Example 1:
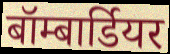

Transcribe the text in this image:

बॉम्बार्डियर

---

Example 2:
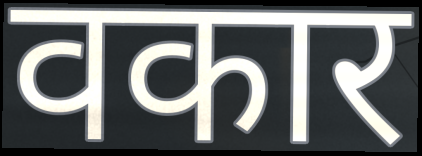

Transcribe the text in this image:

वकार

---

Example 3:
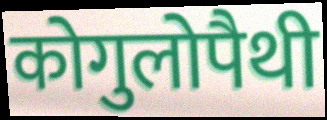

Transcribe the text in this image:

कोगुलोपैथी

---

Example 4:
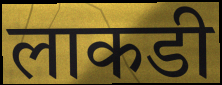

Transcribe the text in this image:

लाकडी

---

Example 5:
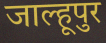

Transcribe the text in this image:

जाल्हूपुर